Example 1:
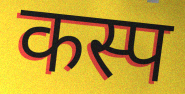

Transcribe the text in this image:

कस्प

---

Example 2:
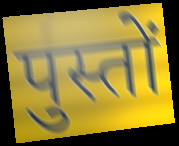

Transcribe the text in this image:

पुस्तों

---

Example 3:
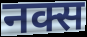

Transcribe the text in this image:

नक्स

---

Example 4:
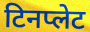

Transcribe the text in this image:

टिनप्लेट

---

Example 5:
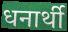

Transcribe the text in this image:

धनार्थी